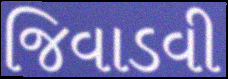
જિવાડવી